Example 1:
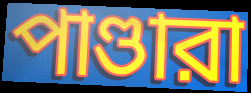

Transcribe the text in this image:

পাণ্ডারা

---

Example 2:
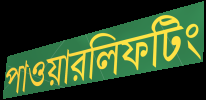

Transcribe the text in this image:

পাওয়ারলিফটিং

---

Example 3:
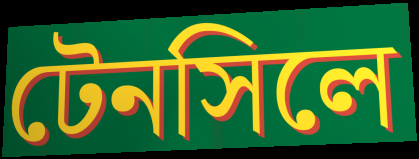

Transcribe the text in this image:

টেনসিলে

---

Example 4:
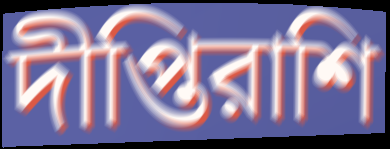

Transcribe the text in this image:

দীপ্তিরাশি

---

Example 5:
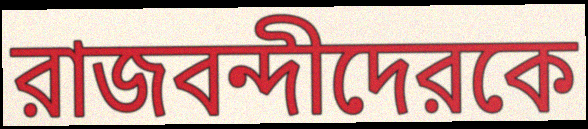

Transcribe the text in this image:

রাজবন্দীদেরকে